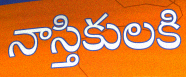
నాస్తికులకి